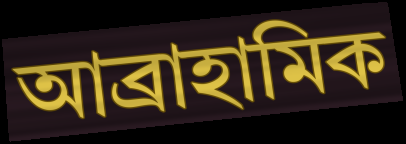
আব্ৰাহামিক